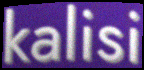
kalisi